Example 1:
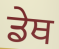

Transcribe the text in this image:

ਡੇਥ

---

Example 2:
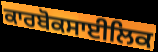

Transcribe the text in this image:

ਕਾਰਬੋਕਸਾਈਲਿਕ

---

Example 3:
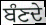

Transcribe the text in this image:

ਬੰਣਦੇ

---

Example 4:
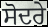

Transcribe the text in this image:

ਸੋਦਰੇ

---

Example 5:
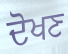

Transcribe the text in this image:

ਦੋਖਣ